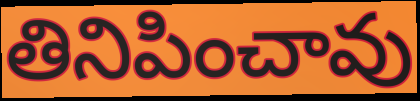
తినిపించావు